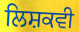
ਲਿਸ਼ਕਵੀ